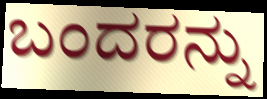
ಬಂದರನ್ನು